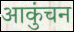
आकुंचन